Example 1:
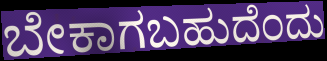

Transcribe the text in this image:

ಬೇಕಾಗಬಹುದೆಂದು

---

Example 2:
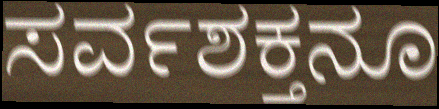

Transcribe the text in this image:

ಸರ್ವಶಕ್ತನೂ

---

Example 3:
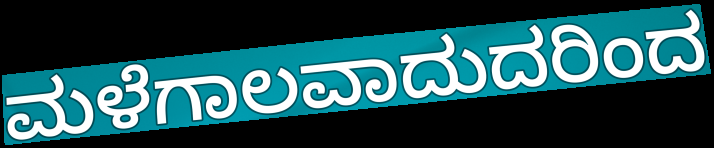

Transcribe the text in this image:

ಮಳೆಗಾಲವಾದುದರಿಂದ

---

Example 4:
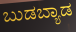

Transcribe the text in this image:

ಬುಡಬ್ಯಾಡ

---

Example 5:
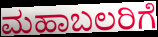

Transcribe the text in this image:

ಮಹಾಬಲರಿಗೆ